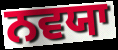
ਨਵਯਾ